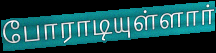
போராடியுள்ளார்